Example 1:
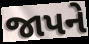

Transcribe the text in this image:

જાપને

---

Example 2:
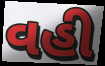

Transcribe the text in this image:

વહી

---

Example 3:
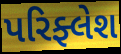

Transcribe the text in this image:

પરિફ્લેશ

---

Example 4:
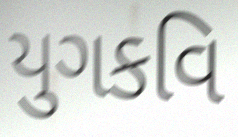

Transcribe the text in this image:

યુગકવિ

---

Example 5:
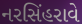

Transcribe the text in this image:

નરસિંહરાવે